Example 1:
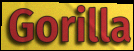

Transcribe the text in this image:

Gorilla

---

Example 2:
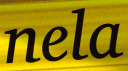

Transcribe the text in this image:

nela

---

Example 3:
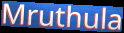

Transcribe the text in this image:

Mruthula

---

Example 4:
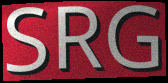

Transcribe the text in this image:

SRG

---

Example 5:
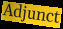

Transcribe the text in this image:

Adjunct